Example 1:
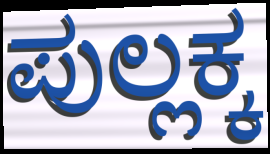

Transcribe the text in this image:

ಪುಲ್ಲಕ್ಕ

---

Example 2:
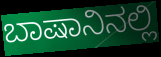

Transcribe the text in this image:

ಬಾಷಾನಿನಲ್ಲಿ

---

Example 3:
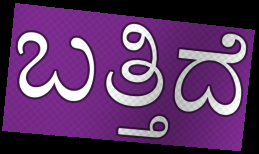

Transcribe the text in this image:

ಬತ್ತಿದೆ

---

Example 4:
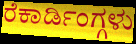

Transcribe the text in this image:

ರೆಕಾರ್ಡಿಂಗ್ಗಳು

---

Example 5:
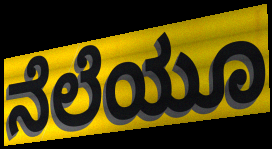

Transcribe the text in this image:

ನೆಲೆಯೂ